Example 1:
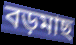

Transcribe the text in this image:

বড়মাছ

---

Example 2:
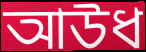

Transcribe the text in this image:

আউধ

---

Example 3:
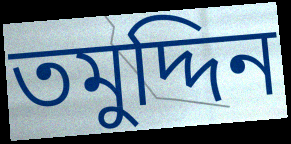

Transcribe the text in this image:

তমুদ্দিন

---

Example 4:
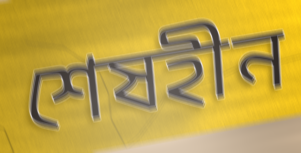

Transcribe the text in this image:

শেষহীন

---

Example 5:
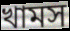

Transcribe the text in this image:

খামস